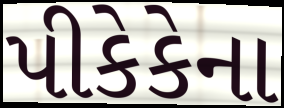
પીકેકેના